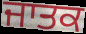
ਜਾਤਕ